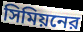
সিমিয়নের